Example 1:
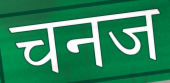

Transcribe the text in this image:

चनज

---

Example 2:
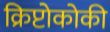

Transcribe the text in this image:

क्रिप्टोकोकी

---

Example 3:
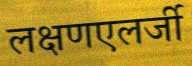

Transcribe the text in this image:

लक्षणएलर्जी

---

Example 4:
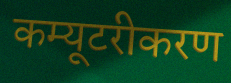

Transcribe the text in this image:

कम्यूटरीकरण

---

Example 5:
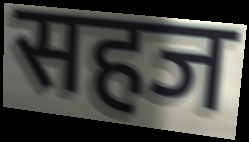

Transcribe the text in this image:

सहज